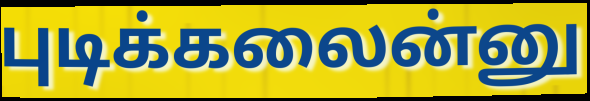
புடிக்கலைன்னு